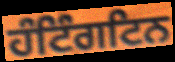
ਹੰਟਿੰਗਟਿਨ